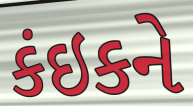
કંઇકને